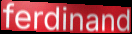
ferdinand